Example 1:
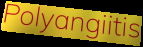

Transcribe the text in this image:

Polyangiitis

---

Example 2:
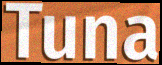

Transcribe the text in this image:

Tuna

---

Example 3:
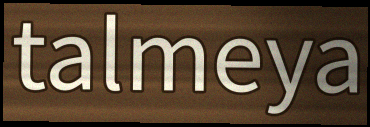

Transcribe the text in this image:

talmeya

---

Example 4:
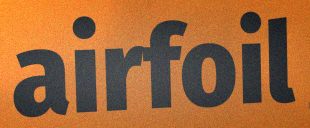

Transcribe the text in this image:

airfoil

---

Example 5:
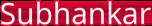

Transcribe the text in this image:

Subhankar